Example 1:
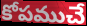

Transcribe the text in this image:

కోపముచే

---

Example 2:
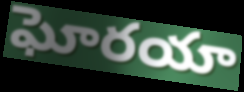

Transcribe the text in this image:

ఘోరయా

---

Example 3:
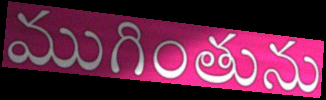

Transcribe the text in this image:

ముగింతును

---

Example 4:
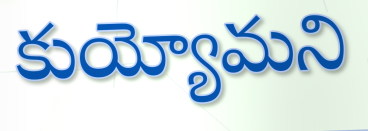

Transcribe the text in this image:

కుయ్యోమని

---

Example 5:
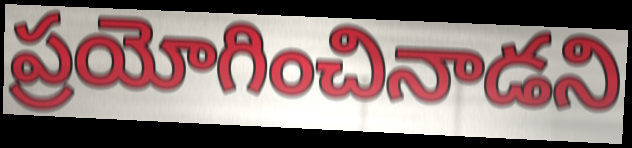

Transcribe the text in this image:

ప్రయోగించినాడని